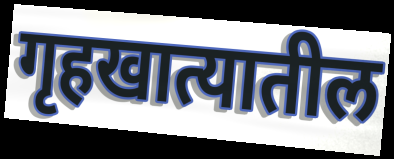
गृहखात्यातील